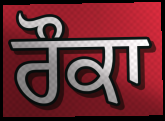
ਰੌਕਾ